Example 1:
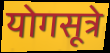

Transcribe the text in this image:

योगसूत्रे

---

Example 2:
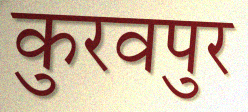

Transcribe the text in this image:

कुरवपुर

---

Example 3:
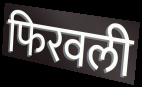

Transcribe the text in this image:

फिरवली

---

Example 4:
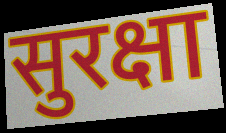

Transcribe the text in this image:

सुरक्षा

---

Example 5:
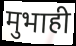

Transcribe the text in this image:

मुभाही